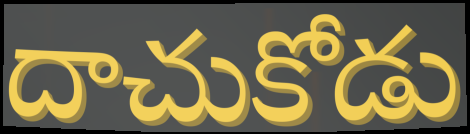
దాచుకోడు